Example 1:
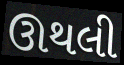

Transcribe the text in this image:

ઊથલી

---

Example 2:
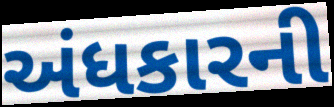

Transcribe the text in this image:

અંધકારની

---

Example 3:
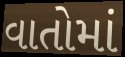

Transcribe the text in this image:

વાતોમાં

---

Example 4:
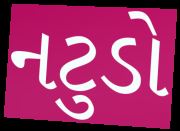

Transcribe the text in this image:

નટુડો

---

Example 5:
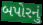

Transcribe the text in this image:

બપોરનું